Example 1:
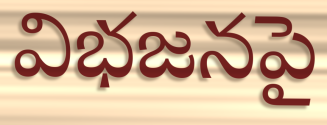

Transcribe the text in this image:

విభజనపై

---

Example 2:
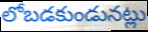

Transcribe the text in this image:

లోబడకుండునట్లు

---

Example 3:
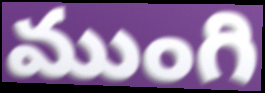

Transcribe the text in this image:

ముంగి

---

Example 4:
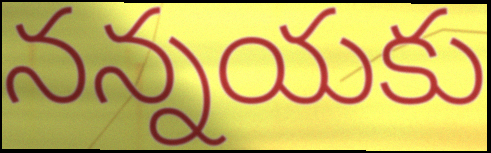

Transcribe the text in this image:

నన్నయకు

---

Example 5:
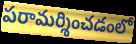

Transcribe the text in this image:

పరామర్శించడంలో